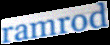
ramrod